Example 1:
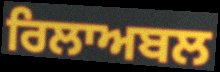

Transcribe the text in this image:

ਰਿਲਾਅਬਲ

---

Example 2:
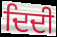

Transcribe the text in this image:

ਦਿਦੀ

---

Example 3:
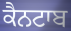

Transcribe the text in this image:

ਕੈਨਟਾਬ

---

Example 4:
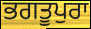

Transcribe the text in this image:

ਭਗਤੂਪੁਰਾ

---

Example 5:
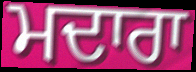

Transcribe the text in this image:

ਮਦਾਰਾ